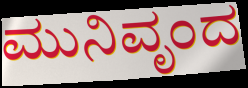
ಮುನಿವೃಂದ